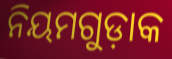
ନିୟମଗୁଡ଼ାକ